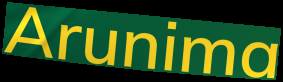
Arunima